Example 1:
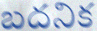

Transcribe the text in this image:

బదనిక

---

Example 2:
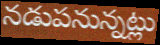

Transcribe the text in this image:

నడుపనున్నట్లు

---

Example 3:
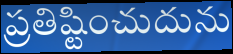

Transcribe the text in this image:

ప్రతిష్టించుదును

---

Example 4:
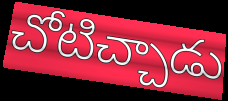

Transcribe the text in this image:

చోటిచ్చాడు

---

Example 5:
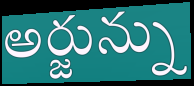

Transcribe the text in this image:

అర్జున్ను